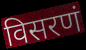
विसरणं